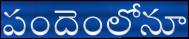
పందెంలోనూ